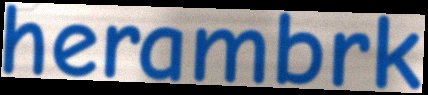
herambrk